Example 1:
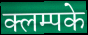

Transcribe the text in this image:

क्लम्पके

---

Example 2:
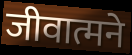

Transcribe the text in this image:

जीवात्मने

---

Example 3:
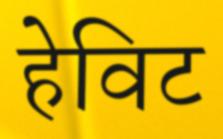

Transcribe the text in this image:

हेविट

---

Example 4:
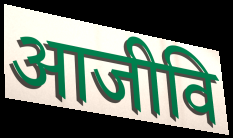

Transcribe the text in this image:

आजीवि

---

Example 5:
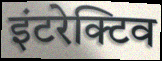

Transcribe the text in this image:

इंटरेक्टिव